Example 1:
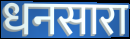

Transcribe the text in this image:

धनसारा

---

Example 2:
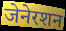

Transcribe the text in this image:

जेनेरशन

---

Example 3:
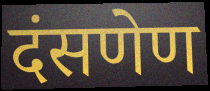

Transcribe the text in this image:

दंसणेण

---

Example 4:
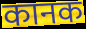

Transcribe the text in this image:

कानक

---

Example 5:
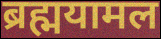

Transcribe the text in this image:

ब्रह्मयामल